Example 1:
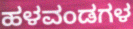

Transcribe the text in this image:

ಹಳವಂಡಗಳ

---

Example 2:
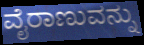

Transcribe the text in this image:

ವೈರಾಣುವನ್ನು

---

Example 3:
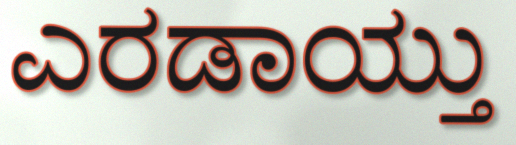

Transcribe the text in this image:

ಎರಡಾಯ್ತು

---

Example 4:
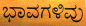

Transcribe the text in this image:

ಭಾವಗಳಿವು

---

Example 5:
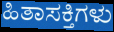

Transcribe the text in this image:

ಹಿತಾಸಕ್ತಿಗಳು